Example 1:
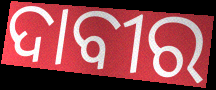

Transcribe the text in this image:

ଦାବୀର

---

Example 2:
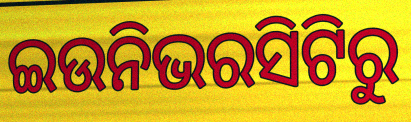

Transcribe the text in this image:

ଇଉନିଭରସିଟିରୁ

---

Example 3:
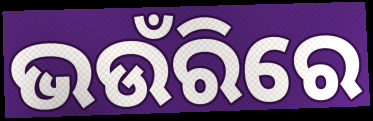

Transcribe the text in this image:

ଭଉଁରିରେ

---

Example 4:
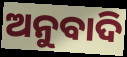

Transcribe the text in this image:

ଅନୁବାଦି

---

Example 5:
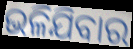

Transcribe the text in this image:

ଭଳିଯିବାର